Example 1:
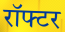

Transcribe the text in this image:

रॉफ्टर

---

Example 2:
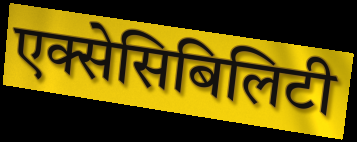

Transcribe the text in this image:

एक्सेसिबिलिटी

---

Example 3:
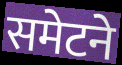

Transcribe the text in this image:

समेटने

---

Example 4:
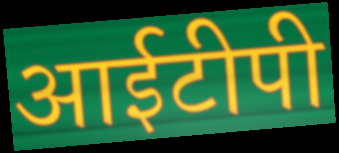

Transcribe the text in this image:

आईटीपी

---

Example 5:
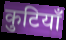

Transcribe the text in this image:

कुटियाँ